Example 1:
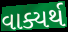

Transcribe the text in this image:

વાક્યર્થ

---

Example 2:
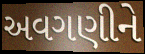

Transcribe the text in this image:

અવગણીને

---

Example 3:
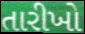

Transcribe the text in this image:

તારીખો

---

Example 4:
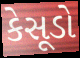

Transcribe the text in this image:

કેસૂડો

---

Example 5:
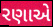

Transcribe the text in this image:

રણાએ